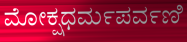
ಮೋಕ್ಷಧರ್ಮಪರ್ವಣಿ